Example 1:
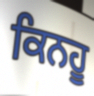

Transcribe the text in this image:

ਕਿਨਹੂ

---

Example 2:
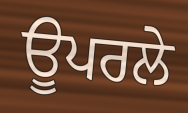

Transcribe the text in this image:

ਊਪਰਲੇ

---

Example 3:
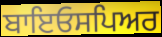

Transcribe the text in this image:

ਬਾਇਓਸਪਿਅਰ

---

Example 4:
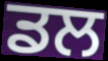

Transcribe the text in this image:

ਡਲ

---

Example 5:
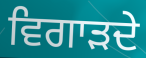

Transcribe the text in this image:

ਵਿਗਾੜਦੇ